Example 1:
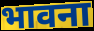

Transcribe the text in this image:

भावना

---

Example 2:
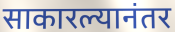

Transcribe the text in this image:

साकारल्यानंतर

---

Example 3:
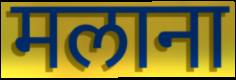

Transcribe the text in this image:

मलाना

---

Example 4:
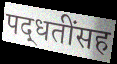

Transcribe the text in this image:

पद्धतींसह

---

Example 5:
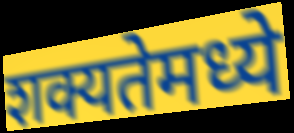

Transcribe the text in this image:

शक्यतेमध्ये